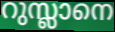
റുസ്ലാനെ